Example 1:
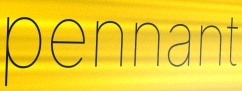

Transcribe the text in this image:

pennant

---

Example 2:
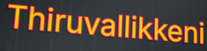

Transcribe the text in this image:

Thiruvallikkeni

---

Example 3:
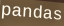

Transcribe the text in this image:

pandas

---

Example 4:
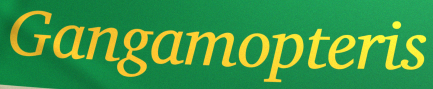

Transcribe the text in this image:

Gangamopteris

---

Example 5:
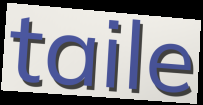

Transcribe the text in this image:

taile